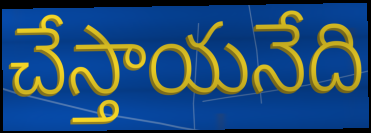
చేస్తాయనేది